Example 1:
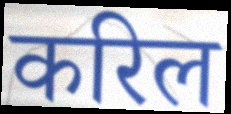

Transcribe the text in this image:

करिल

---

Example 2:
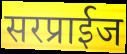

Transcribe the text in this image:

सरप्राईज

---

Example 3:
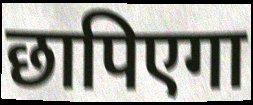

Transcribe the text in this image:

छापिएगा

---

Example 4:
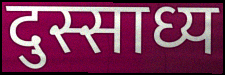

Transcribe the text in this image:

दुस्साध्य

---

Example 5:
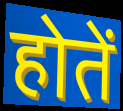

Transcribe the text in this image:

होतें